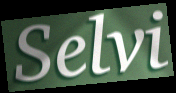
Selvi